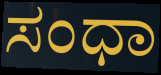
ಸಂಧಾ